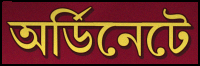
অর্ডিনেটে